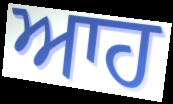
ਆਹ